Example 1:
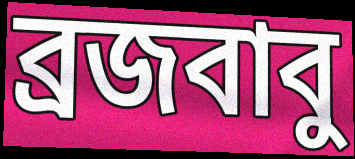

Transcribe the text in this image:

ব্রজবাবু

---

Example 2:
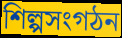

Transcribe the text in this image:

শিল্পসংগঠন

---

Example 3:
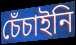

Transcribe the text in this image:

চেঁচাইনি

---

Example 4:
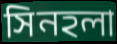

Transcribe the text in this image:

সিনহলা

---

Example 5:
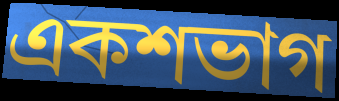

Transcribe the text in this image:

একশভাগ